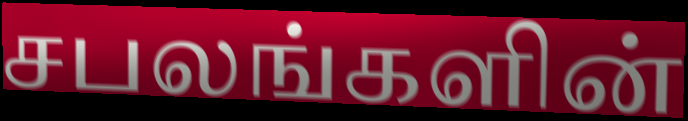
சபலங்களின்